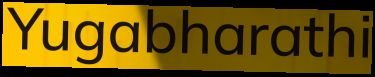
Yugabharathi